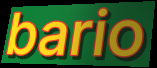
bario